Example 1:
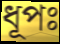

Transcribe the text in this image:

ধূপঃ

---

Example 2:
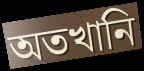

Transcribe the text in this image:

অতখানি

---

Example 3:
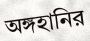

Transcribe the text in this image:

অঙ্গহানির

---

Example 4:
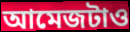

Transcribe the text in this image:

আমেজটাও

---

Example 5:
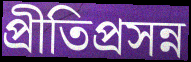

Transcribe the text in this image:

প্রীতিপ্রসন্ন